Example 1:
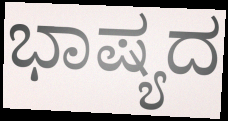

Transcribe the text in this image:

ಭಾಷ್ಯದ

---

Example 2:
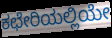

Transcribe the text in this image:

ಕಛೇರಿಯಲ್ಲಿಯೇ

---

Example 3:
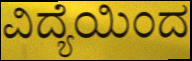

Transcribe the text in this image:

ವಿದ್ಯೆಯಿಂದ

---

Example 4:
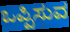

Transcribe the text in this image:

ಒಪ್ಪಿಸುವ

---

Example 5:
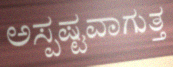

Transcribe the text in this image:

ಅಸ್ಪಷ್ಟವಾಗುತ್ತ